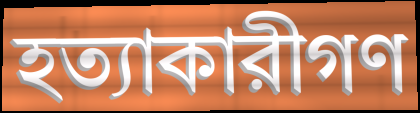
হত্যাকারীগণ